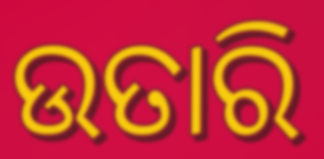
ଉତାରି